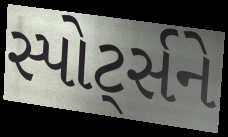
સ્પોર્ટ્સને